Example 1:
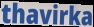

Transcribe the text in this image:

thavirka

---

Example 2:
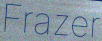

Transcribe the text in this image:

Frazer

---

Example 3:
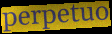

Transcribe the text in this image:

perpetuo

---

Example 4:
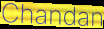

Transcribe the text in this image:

Chandan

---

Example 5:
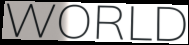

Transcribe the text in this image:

WORLD